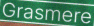
Grasmere